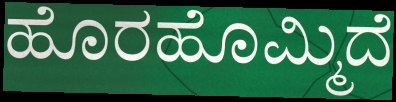
ಹೊರಹೊಮ್ಮಿದೆ